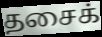
தசைக்